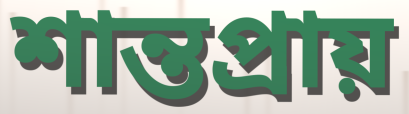
শান্তপ্রায়